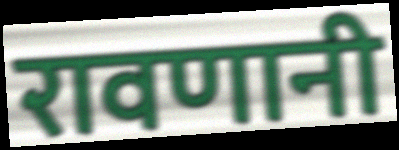
रावणानी